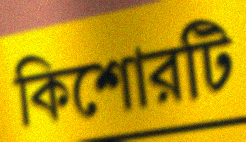
কিশোরটি